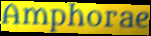
Amphorae